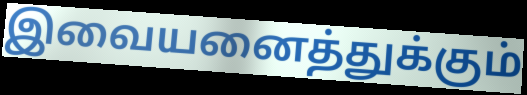
இவையனைத்துக்கும்